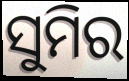
ସୁମିର